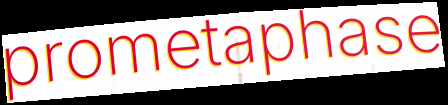
prometaphase